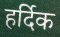
हर्दिक